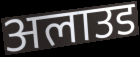
अलाउड